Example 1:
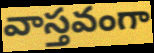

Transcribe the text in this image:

వాస్తవంగా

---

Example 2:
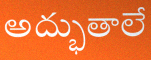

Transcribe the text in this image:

అద్భుతాలే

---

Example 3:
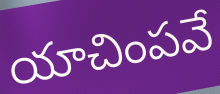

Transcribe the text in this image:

యాచింపవే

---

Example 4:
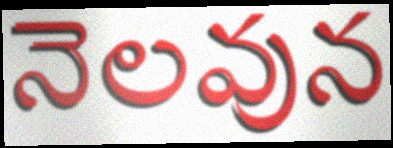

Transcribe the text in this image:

నెలవున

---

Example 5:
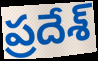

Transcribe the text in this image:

ప్రదేశ్